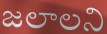
జలాలని